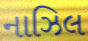
નાઝિલ